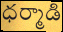
ధర్మాడి